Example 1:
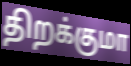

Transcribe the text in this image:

திறக்குமா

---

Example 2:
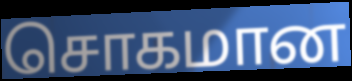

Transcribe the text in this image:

சொகமான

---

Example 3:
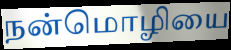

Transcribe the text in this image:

நன்மொழியை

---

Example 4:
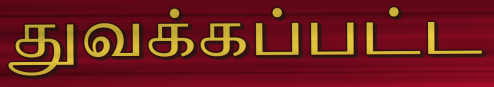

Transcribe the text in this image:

துவக்கப்பட்ட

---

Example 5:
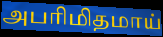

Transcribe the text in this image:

அபரிமிதமாய்